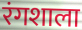
रंगशाला